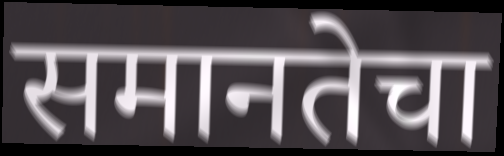
समानतेचा